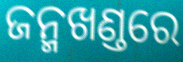
ଜନ୍ମଖଣ୍ଡରେ